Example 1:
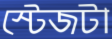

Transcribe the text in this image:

স্টেজটা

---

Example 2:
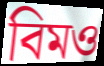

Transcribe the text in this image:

বিমও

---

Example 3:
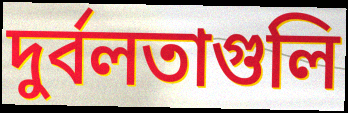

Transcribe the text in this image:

দুর্বলতাগুলি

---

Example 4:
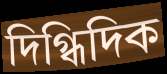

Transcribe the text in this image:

দিগ্ধিদিক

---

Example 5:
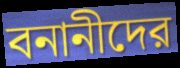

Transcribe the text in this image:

বনানীদের